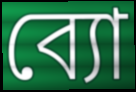
ব্যো